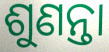
ଶୁଣନ୍ତା